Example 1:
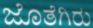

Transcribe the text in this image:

ಜೊತೆಗಿರು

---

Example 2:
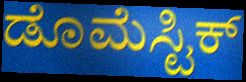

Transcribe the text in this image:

ಡೊಮೆಸ್ಟಿಕ್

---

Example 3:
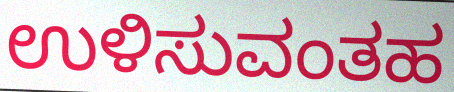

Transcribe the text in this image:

ಉಳಿಸುವಂತಹ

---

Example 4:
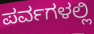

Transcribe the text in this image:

ಪರ್ವಗಳಲ್ಲಿ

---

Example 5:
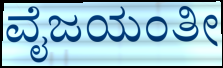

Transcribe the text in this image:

ವೈಜಯಂತೀ